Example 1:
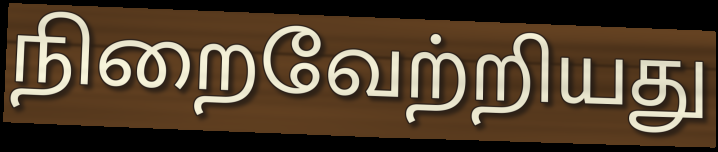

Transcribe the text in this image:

நிறைவேற்றியது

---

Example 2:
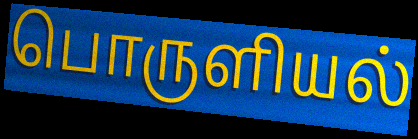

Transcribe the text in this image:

பொருளியல்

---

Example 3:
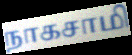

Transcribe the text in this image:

நாகசாமி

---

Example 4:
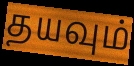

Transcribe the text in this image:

தயவும்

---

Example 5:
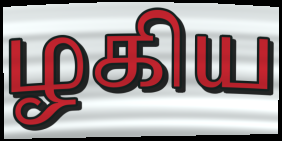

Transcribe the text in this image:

ழகிய